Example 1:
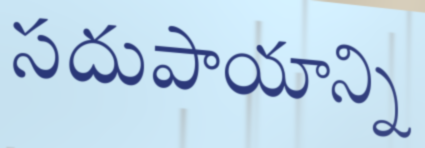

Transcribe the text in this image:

సదుపాయాన్ని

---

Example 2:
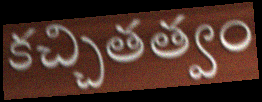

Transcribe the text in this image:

కచ్చితత్వం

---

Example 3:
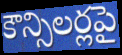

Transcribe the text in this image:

కౌన్సిలర్లపై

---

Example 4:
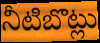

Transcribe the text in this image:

నీటిబొట్లు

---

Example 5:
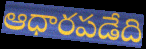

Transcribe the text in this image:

ఆధారపడేది